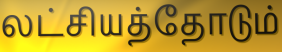
லட்சியத்தோடும்